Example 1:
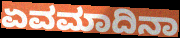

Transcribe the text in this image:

ಏವಮಾದಿನಾ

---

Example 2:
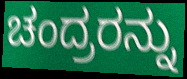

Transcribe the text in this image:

ಚಂದ್ರರನ್ನು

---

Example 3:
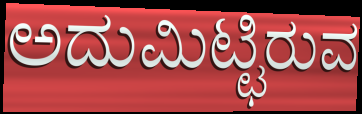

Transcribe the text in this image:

ಅದುಮಿಟ್ಟಿರುವ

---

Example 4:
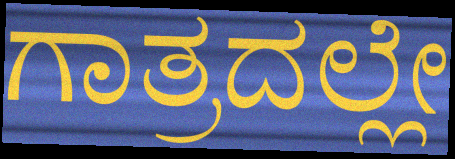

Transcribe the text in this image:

ಗಾತ್ರದಲ್ಲೇ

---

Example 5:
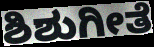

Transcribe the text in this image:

ಶಿಶುಗೀತೆ